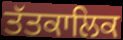
ਤੱਤਕਾਲਿਕ